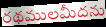
రథములమీదను